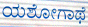
ಯಶೋಗಾಥೆ